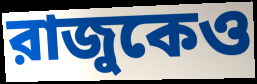
রাজুকেও